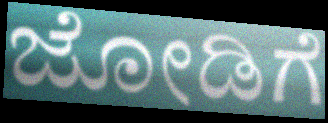
ಜೋಡಿಗೆ